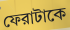
ফেরাটাকে